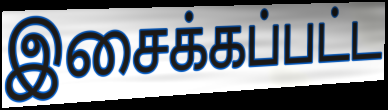
இசைக்கப்பட்ட